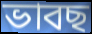
ভাবছ